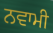
ਨਵਾਮੀ